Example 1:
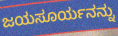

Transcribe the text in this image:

ಜಯಸೂರ್ಯನನ್ನು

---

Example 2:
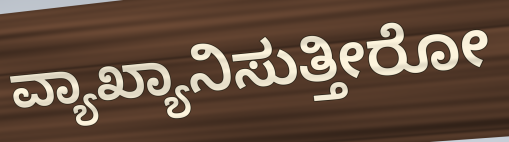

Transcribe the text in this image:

ವ್ಯಾಖ್ಯಾನಿಸುತ್ತೀರೋ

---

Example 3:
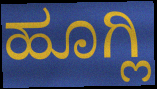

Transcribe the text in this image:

ಹೂಗ್ಲಿ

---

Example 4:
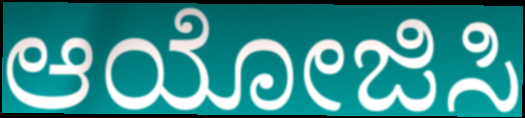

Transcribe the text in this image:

ಆಯೋಜಿಸಿ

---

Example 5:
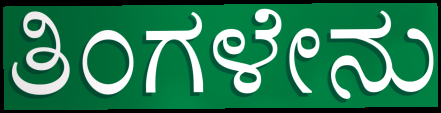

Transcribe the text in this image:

ತಿಂಗಳೇನು